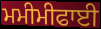
ਮਮੀਮੀਫਾਈ